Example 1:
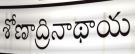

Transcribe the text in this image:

శోణాద్రినాథాయ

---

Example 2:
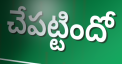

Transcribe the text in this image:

చేపట్టిందో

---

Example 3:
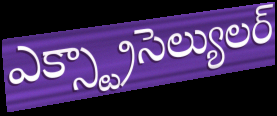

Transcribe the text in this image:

ఎక్స్ట్రాసెల్యులర్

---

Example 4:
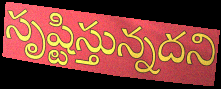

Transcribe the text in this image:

సృష్టిస్తున్నదని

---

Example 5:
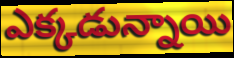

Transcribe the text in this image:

ఎక్కడున్నాయి